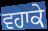
ਵਹਾਕੇ